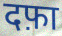
दफ़ा